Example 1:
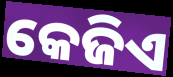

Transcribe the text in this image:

କେଜିଏ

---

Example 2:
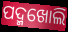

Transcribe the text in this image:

ପଦ୍ମଖୋଲି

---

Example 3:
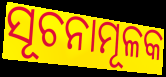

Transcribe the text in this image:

ସୂଚନାମୂଳକ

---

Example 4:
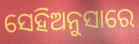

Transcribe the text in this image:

ସେହିଅନୁସାରେ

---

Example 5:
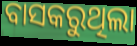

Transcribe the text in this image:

ବାସକରୁଥିଲା